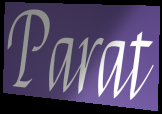
Parat